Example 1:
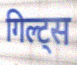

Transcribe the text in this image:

गिल्ट्स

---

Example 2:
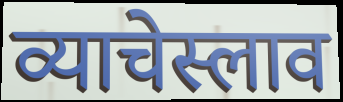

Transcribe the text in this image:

व्याचेस्लाव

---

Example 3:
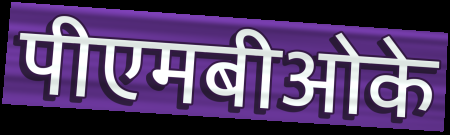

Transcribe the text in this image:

पीएमबीओके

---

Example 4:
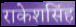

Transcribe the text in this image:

राकेशसिंह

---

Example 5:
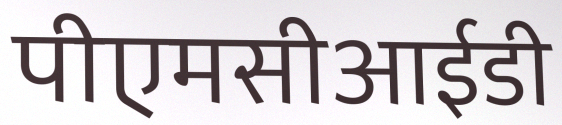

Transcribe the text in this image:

पीएमसीआईडी